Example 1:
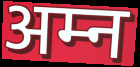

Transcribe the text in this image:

अम्न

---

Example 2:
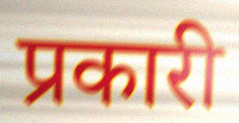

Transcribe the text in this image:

प्रकारी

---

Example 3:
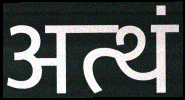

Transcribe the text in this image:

अत्थं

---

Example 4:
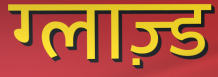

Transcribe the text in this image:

ग्लाज़्ड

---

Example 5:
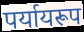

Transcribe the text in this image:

पर्यायरूप